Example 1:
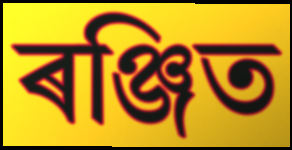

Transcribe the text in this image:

ৰঞ্জিত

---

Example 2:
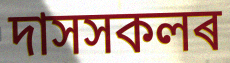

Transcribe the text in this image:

দাসসকলৰ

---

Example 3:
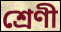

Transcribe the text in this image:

শ্ৰেণী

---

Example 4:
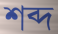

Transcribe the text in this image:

শব্দ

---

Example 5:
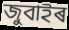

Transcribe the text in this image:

জুবাইৰ